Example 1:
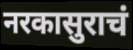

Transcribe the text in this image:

नरकासुराचं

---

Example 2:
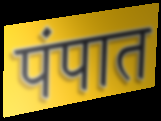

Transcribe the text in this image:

पंपात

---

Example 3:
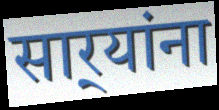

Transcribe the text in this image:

सार्यांना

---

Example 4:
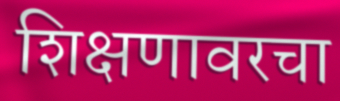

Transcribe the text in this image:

शिक्षणावरचा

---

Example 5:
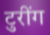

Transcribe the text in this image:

टुरींग